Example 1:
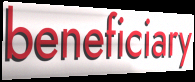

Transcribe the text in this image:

beneficiary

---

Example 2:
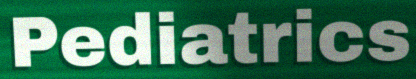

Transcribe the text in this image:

Pediatrics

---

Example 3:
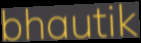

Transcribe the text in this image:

bhautik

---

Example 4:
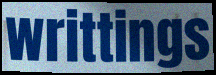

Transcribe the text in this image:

writtings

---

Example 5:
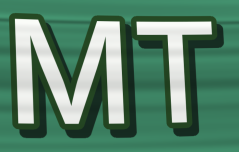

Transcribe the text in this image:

MT